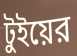
টুইয়ের